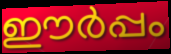
ഈർപ്പം